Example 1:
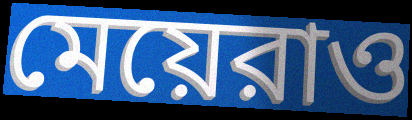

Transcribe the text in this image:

মেয়েরাও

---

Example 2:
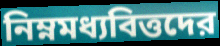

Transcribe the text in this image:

নিম্নমধ্যবিত্তদের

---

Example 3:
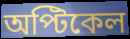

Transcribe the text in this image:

অপ্টিকেল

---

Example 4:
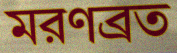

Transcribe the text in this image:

মরণব্রত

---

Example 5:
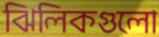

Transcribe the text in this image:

ঝিলিকগুলো